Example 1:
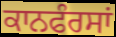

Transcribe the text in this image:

ਕਾਨਫੰਰਸਾਂ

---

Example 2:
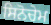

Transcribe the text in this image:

ਸਿਨੋਚੇਮ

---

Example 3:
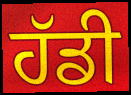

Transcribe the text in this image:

ਹੱਡੀ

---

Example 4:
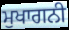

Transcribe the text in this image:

ਮੁਖਾਗਨੀ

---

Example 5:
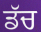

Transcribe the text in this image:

ਡੱਚ